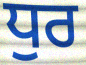
ਧੁਰ